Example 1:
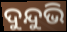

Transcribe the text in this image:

ଦୁନ୍ଦୁଭି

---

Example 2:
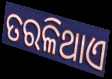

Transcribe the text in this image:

ତରଳିଥାଏ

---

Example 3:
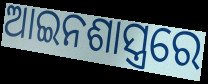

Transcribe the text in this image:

ଆଇନଶାସ୍ତ୍ରରେ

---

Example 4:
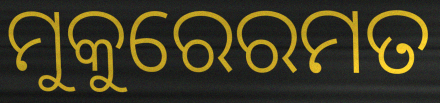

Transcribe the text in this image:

ମୁକୁରେରମତ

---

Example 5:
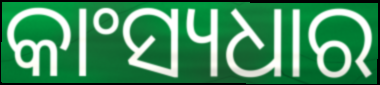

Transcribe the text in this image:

କାଂସ୍ୟଧାର